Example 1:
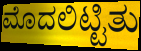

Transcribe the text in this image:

ಮೊದಲಿಟ್ಟಿತು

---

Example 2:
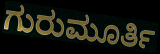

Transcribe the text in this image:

ಗುರುಮೂರ್ತಿ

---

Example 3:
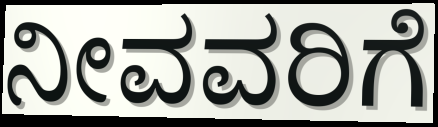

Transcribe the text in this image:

ನೀವವರಿಗೆ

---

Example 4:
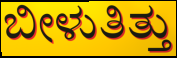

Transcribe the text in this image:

ಬೀಳುತಿತ್ತು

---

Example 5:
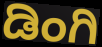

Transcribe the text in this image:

ಡಿಂಗಿ